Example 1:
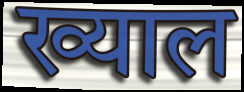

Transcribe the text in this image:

ख्याल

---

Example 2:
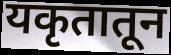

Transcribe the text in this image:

यकृतातून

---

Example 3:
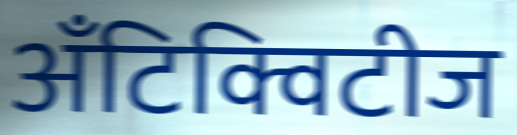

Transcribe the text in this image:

अँटिक्विटीज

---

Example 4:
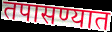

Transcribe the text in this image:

तपासण्यात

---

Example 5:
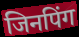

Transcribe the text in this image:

जिनपिंग